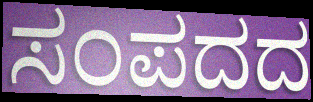
ಸಂಪದದ